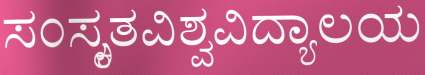
ಸಂಸ್ಕೃತವಿಶ್ವವಿದ್ಯಾಲಯ